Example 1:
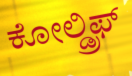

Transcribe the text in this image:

ಕೋಲ್ಡ್ರಿಫ್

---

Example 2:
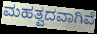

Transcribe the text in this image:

ಮಹತ್ವದವಾಗಿವೆ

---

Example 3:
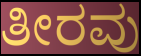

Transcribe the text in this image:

ತೀರವು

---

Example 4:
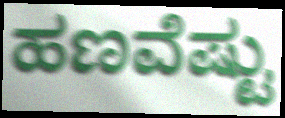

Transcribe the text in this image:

ಹಣವೆಷ್ಟು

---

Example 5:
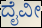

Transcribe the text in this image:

ದೈವೀ